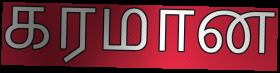
கரமான